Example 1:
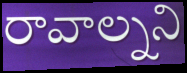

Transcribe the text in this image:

రావాల్నని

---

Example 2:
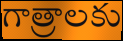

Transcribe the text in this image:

గాత్రాలకు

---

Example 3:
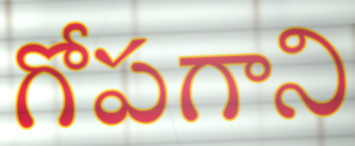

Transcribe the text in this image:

గోపగాని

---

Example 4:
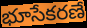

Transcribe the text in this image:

భూసేకరణే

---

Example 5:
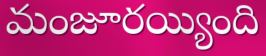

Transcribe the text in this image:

మంజూరయ్యింది